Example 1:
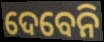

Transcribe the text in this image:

ଦେବେନି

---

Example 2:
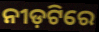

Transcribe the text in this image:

ନୀଡ଼ଟିରେ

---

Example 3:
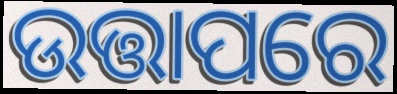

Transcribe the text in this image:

ଉତ୍ତାପରେ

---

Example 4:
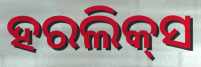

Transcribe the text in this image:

ହରଲିକ୍‍ସ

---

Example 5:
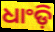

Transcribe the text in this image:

ଧାଂଡ଼ି